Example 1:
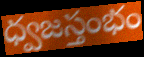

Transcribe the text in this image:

ధ్వజస్తంభం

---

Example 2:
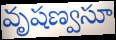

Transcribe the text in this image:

వృషణ్వసూ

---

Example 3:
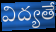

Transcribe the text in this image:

విద్యతే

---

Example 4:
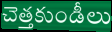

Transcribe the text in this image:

చెత్తకుండీలు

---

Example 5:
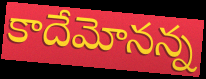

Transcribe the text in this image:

కాదేమోనన్న